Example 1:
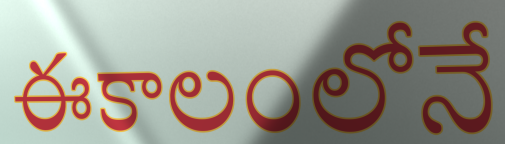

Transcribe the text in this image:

ఈకాలంలోనే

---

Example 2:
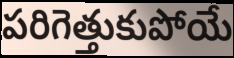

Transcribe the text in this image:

పరిగెత్తుకుపోయే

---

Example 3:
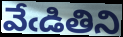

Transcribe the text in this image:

వేఁడితిని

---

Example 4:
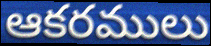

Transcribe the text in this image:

ఆకరములు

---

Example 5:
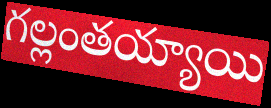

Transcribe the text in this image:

గల్లంతయ్యాయి